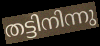
തട്ടിനിന്നു